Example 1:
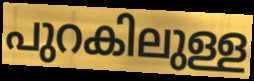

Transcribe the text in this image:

പുറകിലുള്ള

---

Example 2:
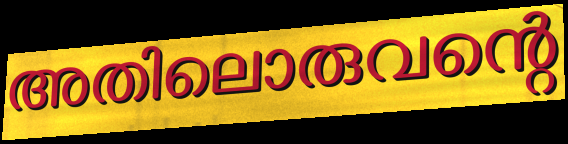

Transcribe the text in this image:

അതിലൊരുവന്റെ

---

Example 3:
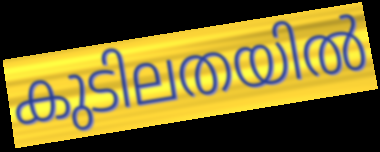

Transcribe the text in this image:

കുടിലതയിൽ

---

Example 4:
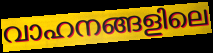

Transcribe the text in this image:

വാഹനങ്ങളിലെ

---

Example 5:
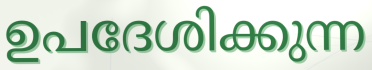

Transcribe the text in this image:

ഉപദേശിക്കുന്ന